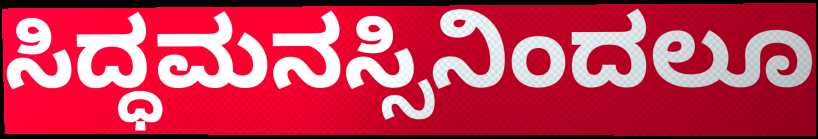
ಸಿದ್ಧಮನಸ್ಸಿನಿಂದಲೂ